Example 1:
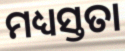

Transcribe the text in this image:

ମଧ୍ୟସ୍ତତା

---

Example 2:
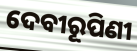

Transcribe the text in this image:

ଦେବୀରୂପିଣୀ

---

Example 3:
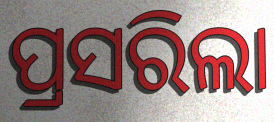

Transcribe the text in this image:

ପ୍ରସରିଲା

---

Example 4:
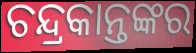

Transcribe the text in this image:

ଚନ୍ଦ୍ରକାନ୍ତଙ୍କର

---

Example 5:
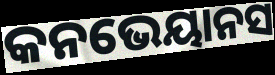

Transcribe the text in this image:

କନଭେୟାନସ